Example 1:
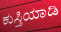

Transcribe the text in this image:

ಕುಸ್ತಿಯಾಡಿ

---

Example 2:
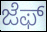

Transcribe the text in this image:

ಜೆಫ್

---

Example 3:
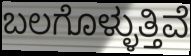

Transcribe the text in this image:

ಬಲಗೊಳ್ಳುತ್ತಿವೆ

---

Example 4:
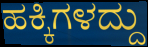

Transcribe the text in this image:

ಹಕ್ಕಿಗಳದ್ದು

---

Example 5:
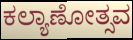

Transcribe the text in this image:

ಕಲ್ಯಾಣೋತ್ಸವ